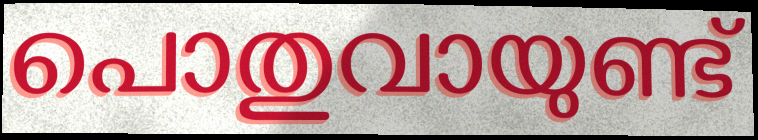
പൊതുവായുണ്ട്